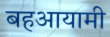
बहआयामी